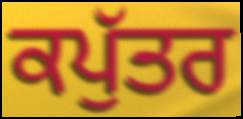
ਕਪੁੱਤਰ